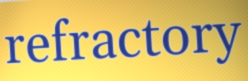
refractory